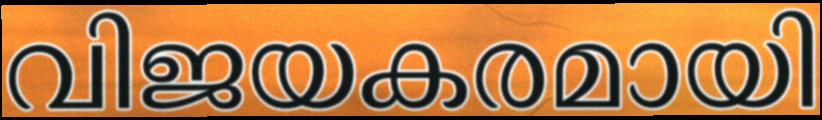
വിജയകരമായി